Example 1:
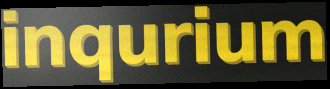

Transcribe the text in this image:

inqurium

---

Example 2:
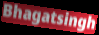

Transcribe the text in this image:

Bhagatsingh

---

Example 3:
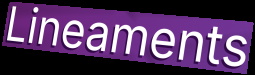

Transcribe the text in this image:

Lineaments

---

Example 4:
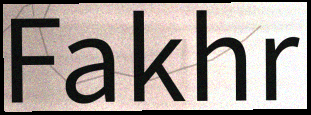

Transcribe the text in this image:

Fakhr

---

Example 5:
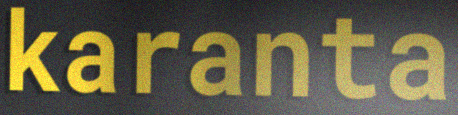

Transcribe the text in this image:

karanta